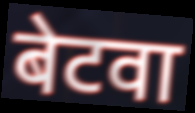
बेटवा